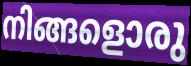
നിങ്ങളൊരു